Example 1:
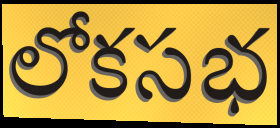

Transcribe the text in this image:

లోకసభ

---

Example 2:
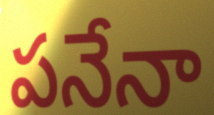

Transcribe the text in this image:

పనేనా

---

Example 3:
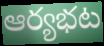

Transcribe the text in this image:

ఆర్యభట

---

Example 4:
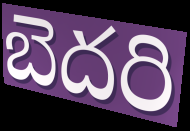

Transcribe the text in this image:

బెదరి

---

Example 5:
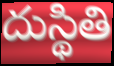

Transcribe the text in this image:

దుస్థితి